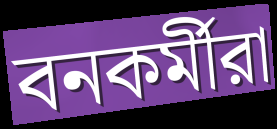
বনকর্মীরা